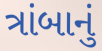
ત્રાંબાનું